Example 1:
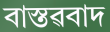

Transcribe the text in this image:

বাস্তৱবাদ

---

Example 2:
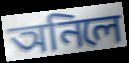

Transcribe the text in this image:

অনিলে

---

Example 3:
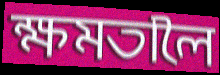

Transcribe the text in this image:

ক্ষমতালৈ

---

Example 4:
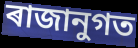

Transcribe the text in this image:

ৰাজানুগত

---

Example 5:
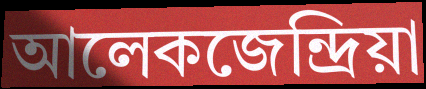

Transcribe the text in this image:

আলেকজেন্দ্ৰিয়া